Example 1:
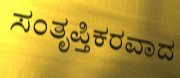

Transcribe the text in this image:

ಸಂತೃಪ್ತಿಕರವಾದ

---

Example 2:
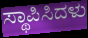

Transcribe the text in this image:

ಸ್ಥಾಪಿಸಿದಳು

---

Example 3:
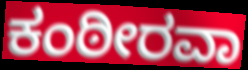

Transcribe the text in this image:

ಕಂಠೀರವಾ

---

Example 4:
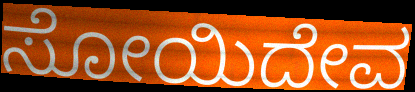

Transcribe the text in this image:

ಸೋಯಿದೇವ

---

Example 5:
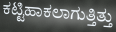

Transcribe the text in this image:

ಕಟ್ಟಿಹಾಕಲಾಗುತ್ತಿತ್ತು